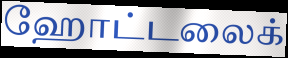
ஹோட்டலைக்